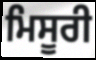
ਮਿਸੂਰੀ